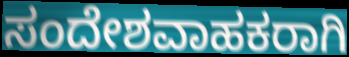
ಸಂದೇಶವಾಹಕರಾಗಿ